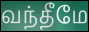
வந்தீமே